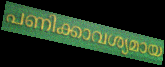
പണിക്കാവശ്യമായ